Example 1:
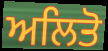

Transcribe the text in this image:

ਅਲਿਤੋ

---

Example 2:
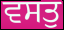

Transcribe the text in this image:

ਵਸਤੁ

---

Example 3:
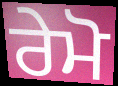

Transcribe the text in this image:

ਰੇਮੋ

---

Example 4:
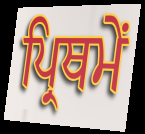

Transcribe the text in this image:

ਪ੍ਰਿਥਮੇਂ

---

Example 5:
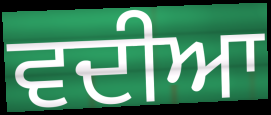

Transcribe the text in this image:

ਵਦੀਆ